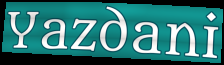
Yazdani